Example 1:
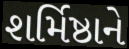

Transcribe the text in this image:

શર્મિષ્ઠાને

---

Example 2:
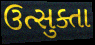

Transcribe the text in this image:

ઉત્સુક્તા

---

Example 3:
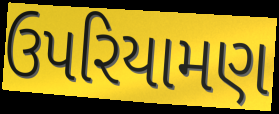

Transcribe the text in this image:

ઉપરિયામણ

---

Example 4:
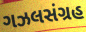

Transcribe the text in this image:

ગઝલસંગ્રહ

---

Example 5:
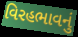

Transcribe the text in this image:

વિરહભાવનું